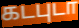
கடபுடா